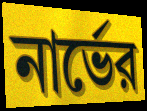
নার্ভের